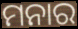
ମନାର